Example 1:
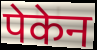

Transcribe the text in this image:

पेकेन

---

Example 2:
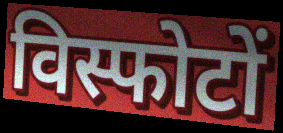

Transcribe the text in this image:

विस्फोटों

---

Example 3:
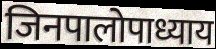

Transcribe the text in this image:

जिनपालोपाध्याय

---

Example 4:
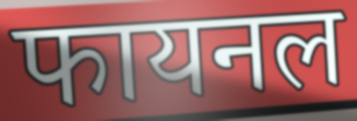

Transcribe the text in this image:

फायनल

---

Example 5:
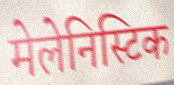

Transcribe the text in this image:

मेलेनिस्टिक